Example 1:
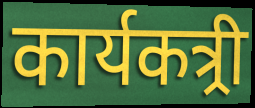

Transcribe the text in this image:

कार्यकत्र्री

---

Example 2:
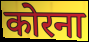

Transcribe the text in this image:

कोरना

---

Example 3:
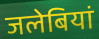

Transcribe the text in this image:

जलेबियां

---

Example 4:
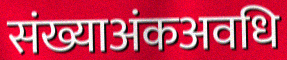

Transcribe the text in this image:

संख्याअंकअवधि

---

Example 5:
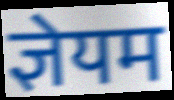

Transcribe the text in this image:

ज्ञेयम